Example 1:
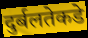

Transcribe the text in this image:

दुर्बलतेकडे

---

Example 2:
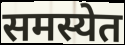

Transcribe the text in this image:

समस्येत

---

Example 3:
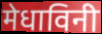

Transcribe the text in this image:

मेधाविनी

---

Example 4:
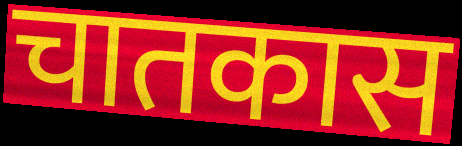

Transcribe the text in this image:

चातकास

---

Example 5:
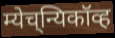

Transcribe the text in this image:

म्येच्‌न्यिकॉव्ह